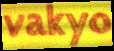
vakyo